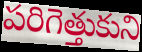
పరిగెత్తుకుని